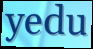
yedu